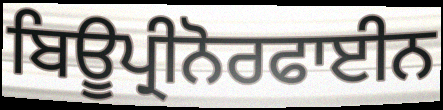
ਬਿਊਪ੍ਰੀਨੋਰਫਾਈਨ